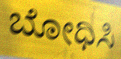
ಬೋಧಿಸಿ